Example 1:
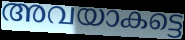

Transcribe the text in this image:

അവയാകട്ടെ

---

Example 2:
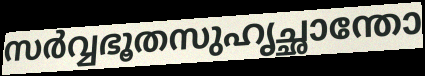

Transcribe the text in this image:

സർവ്വഭൂതസുഹൃച്ഛാന്തോ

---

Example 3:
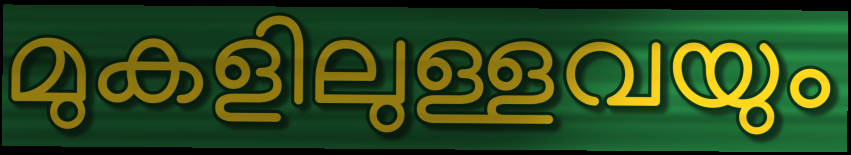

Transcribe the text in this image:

മുകളിലുള്ളവയും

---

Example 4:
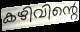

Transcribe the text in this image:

കഴിവിന്റെ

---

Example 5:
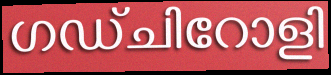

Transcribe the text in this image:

ഗഡ്ചിറോളി